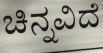
ಚಿನ್ನವಿದೆ